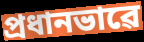
প্ৰধানভাৱে